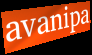
avanipa